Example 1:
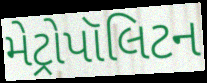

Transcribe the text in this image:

મેટ્રોપૉલિટન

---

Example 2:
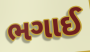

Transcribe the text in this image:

ભગાઈ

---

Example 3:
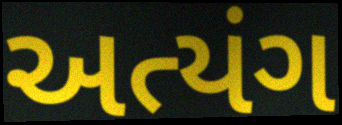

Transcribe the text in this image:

અત્યંગ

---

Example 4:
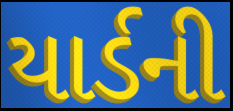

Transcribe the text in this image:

યાર્ડની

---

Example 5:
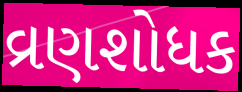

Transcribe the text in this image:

વ્રણશોધક